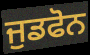
ਜੁਡਫੋਨ